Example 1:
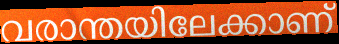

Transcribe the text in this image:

വരാന്തയിലേക്കാണ്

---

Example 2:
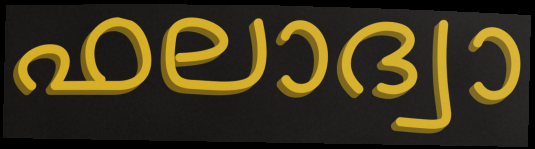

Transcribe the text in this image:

ഫലാദ്വാ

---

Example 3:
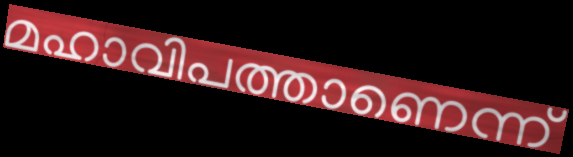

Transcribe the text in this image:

മഹാവിപത്താണെന്ന്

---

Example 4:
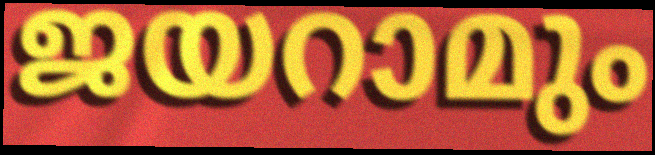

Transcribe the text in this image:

ജയറാമും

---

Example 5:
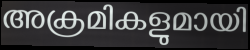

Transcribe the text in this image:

അക്രമികളുമായി